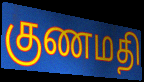
குணமதி